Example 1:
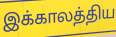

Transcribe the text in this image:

இக்காலத்திய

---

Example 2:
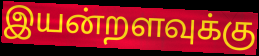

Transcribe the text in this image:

இயன்றளவுக்கு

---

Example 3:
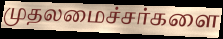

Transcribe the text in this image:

முதலமைச்சர்களை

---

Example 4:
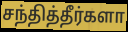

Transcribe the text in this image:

சந்தித்தீர்களா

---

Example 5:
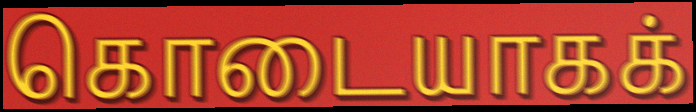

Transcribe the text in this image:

கொடையாகக்